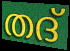
തദ്